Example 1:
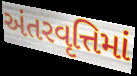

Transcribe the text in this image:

અંતરવૃત્તિમાં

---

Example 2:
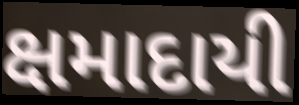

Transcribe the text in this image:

ક્ષમાદાયી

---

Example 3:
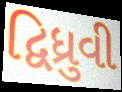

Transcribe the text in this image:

દ્વિધ્રુવી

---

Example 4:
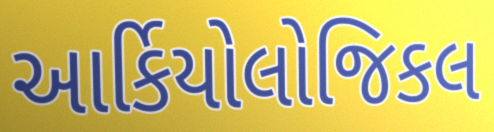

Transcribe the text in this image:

આર્કિયોલોજિકલ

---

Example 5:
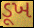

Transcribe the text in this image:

ડૂખ